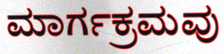
ಮಾರ್ಗಕ್ರಮವು